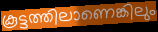
കൂട്ടത്തിലാണെങ്കിലും